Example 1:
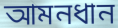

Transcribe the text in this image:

আমনধান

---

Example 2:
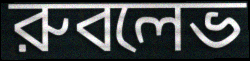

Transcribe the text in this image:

রুবলেভ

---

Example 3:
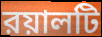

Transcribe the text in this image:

রয়ালটি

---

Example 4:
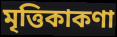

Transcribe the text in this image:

মৃত্তিকাকণা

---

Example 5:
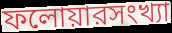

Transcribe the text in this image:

ফলোয়ারসংখ্যা